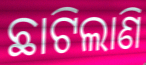
ଛାଟିଲାଣି